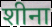
शीना